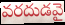
వరదుడవై